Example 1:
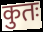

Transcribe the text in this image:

कुतः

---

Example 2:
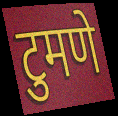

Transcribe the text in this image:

टुमणे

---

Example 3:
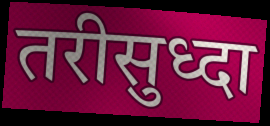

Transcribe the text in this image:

तरीसुध्दा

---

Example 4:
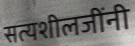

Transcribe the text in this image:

सत्यशीलजींनी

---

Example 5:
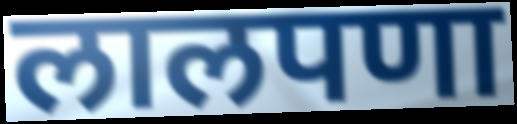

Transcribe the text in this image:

लालपणा